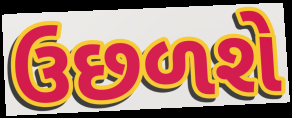
ઉછળશે